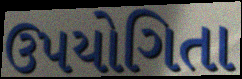
ઉપયોગિતા